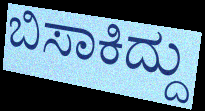
ಬಿಸಾಕಿದ್ದು